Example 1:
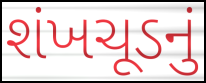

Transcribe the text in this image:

શંખચૂડનું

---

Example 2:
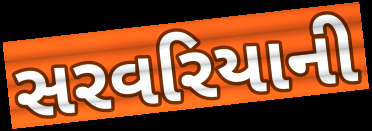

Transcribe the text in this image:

સરવરિયાની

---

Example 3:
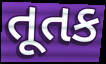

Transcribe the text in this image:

તૂતક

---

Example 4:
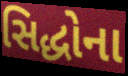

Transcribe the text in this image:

સિદ્ધોના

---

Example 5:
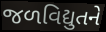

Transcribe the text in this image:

જળવિદ્યુતને